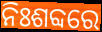
ନିଃଶବ୍ଦରେ